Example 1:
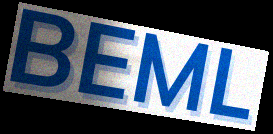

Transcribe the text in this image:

BEML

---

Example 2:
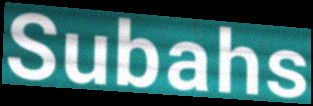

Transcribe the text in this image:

Subahs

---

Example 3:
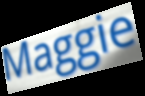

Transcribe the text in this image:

Maggie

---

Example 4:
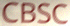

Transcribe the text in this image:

CBSC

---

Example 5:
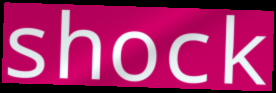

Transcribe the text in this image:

shock